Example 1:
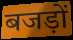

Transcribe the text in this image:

बजड़ों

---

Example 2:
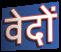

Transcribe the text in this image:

वेदों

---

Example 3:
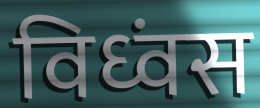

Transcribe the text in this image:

विध्वंस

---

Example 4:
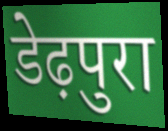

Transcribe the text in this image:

डेढ़पुरा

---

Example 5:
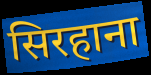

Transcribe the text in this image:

सिरहाना